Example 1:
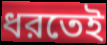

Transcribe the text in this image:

ধরতেই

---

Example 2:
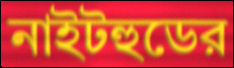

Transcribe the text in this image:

নাইটহুডের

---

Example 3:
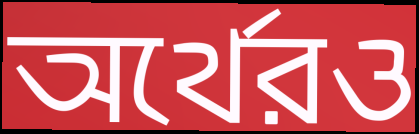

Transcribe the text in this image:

অর্থেরও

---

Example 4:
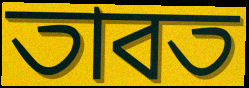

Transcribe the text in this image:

তাবত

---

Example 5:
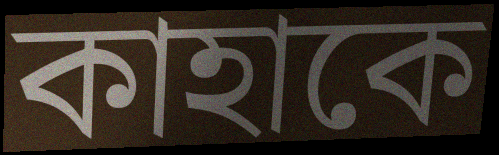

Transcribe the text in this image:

কাহাকে